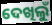
ଦେଖିଲୁଁ